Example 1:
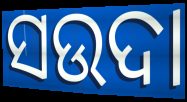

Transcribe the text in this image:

ସଉଦା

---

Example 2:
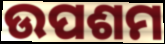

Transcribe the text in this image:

ଉପଶମ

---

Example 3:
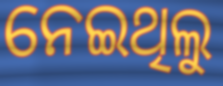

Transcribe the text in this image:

ନେଇଥିଲୁ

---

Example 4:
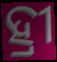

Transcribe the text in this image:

ହ୍ରୀ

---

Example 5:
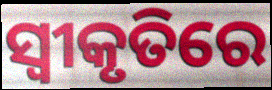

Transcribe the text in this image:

ସ୍ବୀକୃତିରେ